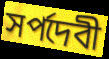
সর্পদেবী